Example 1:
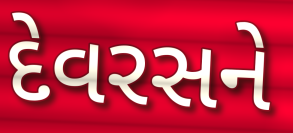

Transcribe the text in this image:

દેવરસને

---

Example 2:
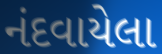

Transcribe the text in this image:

નંદવાયેલા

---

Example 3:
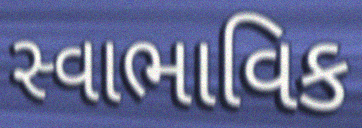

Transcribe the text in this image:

સ્વાભાવિક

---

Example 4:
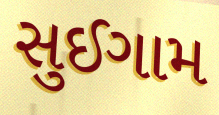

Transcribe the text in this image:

સુઈગામ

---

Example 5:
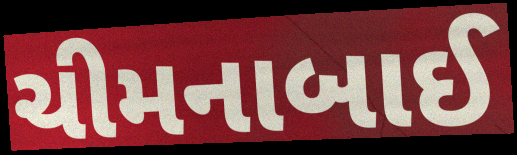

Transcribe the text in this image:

ચીમનાબાઈ